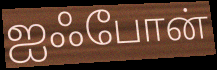
ஐஃபோன்